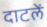
दाटलें